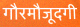
गौरमौजूदगी